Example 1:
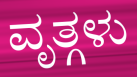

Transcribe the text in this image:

ವೃತ್ಗಳು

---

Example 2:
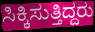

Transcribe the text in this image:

ಸಿಕ್ಕಿಸುತ್ತಿದ್ದರು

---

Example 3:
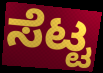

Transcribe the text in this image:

ಸೆಟ್ಟ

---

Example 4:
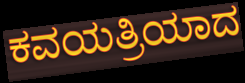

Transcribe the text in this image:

ಕವಯತ್ರಿಯಾದ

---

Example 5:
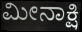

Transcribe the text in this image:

ಮೀನಾಕ್ಷಿ